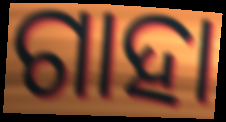
ଗାହା